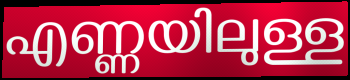
എണ്ണയിലുള്ള